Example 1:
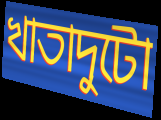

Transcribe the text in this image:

খাতাদুটো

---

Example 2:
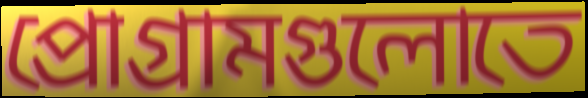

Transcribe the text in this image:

প্রোগ্রামগুলোতে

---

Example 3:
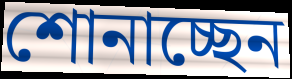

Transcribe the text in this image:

শোনাচ্ছেন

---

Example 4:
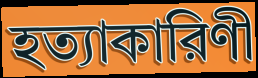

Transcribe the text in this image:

হত্যাকারিণী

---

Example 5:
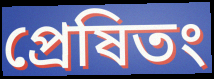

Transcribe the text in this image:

প্রেষিতং